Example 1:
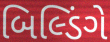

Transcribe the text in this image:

બિલ્ડિંગે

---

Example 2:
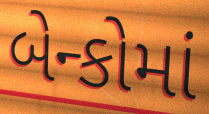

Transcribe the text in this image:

બેન્કોમાં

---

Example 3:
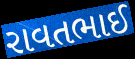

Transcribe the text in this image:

રાવતભાઈ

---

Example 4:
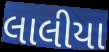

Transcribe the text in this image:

લાલીયા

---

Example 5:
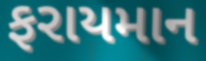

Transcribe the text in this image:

ફરાયમાન